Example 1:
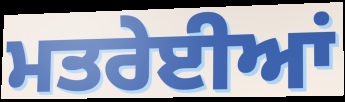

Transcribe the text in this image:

ਮਤਰੇਈਆਂ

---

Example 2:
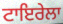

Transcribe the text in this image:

ਟਾਇਰੇਲਾ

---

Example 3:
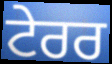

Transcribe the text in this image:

ਟੇਰਰ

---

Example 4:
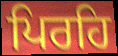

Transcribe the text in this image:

ਪਿਰਹਿ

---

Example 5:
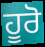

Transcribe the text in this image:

ਹੂਰੋ